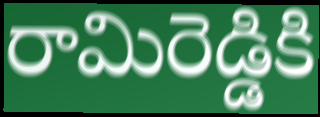
రామిరెడ్డికి